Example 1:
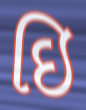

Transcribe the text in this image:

ઇિ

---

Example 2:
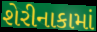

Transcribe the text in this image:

શેરીનાકામાં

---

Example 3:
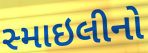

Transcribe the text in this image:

સ્માઇલીનો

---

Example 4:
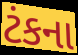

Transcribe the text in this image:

ટંકના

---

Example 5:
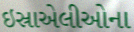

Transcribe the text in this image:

ઇસ્રાએલીઓના